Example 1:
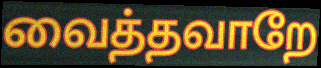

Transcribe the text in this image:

வைத்தவாறே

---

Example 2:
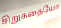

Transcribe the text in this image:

சிறுகதையோ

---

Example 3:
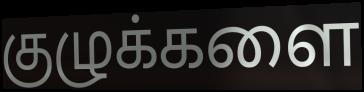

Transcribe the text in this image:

குழுக்களை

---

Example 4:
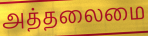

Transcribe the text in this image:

அத்தலைமை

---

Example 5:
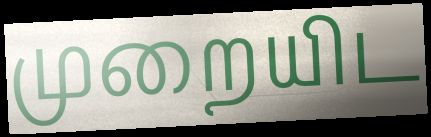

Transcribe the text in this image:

முறையிட